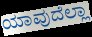
ಯಾವುದೆಲ್ಲಾ